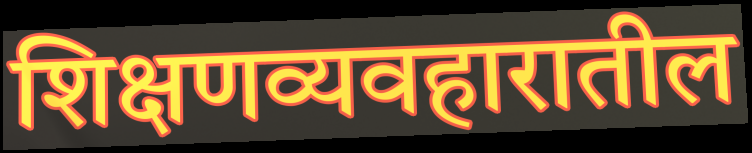
शिक्षणव्यवहारातील